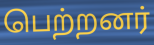
பெற்றனர்